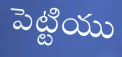
పెట్టియు